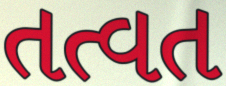
તત્વત